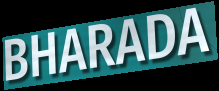
BHARADA